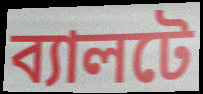
ব্যালটে